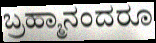
ಬ್ರಹ್ಮಾನಂದರೂ